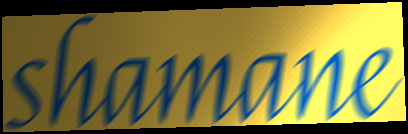
shamane